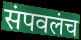
संपवलंच